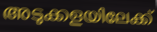
അടുക്കളയിലേക്ക്